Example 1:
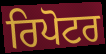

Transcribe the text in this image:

ਰਿਪੋਟਰ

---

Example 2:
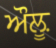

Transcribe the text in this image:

ਔਲ਼ੂ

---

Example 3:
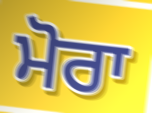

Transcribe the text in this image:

ਮੋਰਾ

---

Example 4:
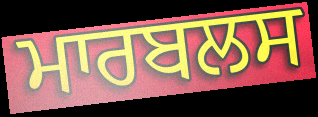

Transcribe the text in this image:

ਮਾਰਬਲਸ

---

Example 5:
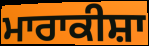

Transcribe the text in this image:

ਮਾਰਾਕੀਸ਼ਾ